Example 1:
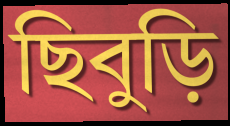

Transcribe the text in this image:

ছিবুড়ি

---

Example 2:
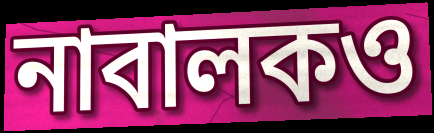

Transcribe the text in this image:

নাবালকও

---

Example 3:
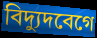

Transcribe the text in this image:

বিদ্যুদবেগে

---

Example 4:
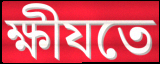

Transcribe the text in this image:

ক্ষীযতে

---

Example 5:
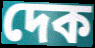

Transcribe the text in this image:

দেক